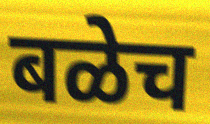
बळेच